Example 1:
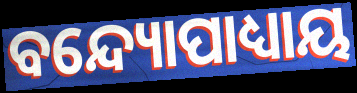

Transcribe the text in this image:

ବନ୍ଦ୍ୟୋପାଧ୍ୟାୟ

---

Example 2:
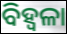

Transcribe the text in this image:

ବିହ୍ଵଳା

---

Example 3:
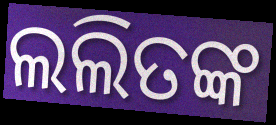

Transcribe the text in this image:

ଲଲିତଙ୍କ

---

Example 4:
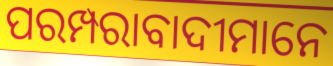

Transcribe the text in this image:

ପରମ୍ପରାବାଦୀମାନେ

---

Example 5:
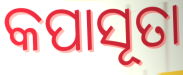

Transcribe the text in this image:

କପାସୂତା